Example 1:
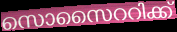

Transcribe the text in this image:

സൊസൈററിക്ക്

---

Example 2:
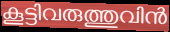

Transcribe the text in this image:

കൂട്ടിവരുത്തുവിൻ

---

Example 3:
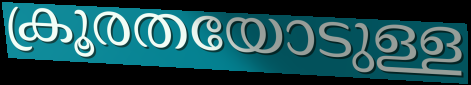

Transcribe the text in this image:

ക്രൂരതയോടുള്ള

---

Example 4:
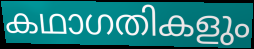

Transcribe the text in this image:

കഥാഗതികളും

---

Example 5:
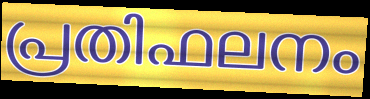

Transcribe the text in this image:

പ്രതിഫലനം